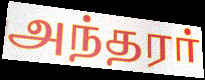
அந்தரர்